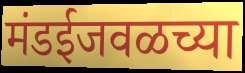
मंडईजवळच्या